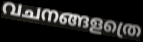
വചനങ്ങളത്രെ